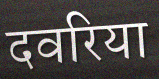
दवरिया